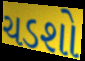
ચડશો